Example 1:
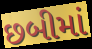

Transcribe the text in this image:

છબીમાં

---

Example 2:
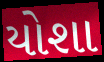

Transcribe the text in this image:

યોશા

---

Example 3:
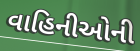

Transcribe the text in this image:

વાહિનીઓની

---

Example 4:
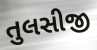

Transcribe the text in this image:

તુલસીજી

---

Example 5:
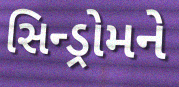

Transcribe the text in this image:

સિન્ડ્રોમને